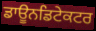
ਡਾਊਨਡਿਟੇਕਟਰ